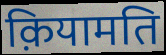
क़ियामति